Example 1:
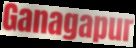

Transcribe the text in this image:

Ganagapur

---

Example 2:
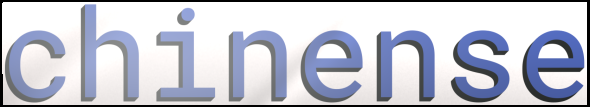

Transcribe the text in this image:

chinense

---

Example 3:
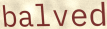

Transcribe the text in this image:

balved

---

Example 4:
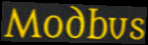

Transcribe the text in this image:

Modbus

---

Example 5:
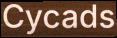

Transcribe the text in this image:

Cycads